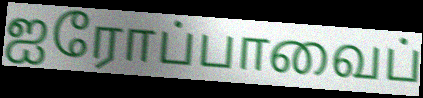
ஐரோப்பாவைப்